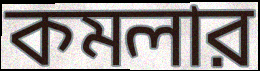
কমলার